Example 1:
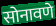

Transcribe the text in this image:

सोनावणे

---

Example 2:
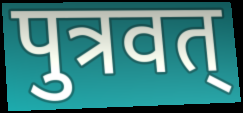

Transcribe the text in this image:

पुत्रवत्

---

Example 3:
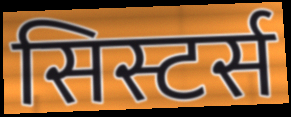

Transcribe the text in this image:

सिस्टर्स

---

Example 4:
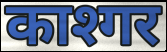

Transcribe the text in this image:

काश्गर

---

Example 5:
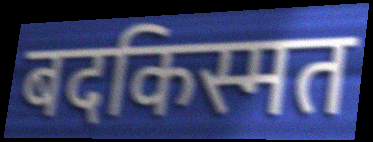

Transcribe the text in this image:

बदकिस्मत